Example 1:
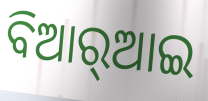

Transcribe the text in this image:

ବିଆର୍‌ଆଇ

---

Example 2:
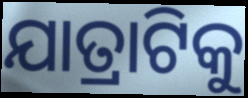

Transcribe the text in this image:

ଯାତ୍ରାଟିକୁ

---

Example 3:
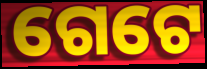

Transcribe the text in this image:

ଗେଟେ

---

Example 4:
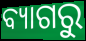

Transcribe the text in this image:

ବ୍ୟାଗରୁ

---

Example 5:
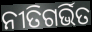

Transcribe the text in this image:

ନୀତିଗର୍ଭିତ